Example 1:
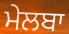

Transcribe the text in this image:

ਮੇਲਬਾ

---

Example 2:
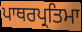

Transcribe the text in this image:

ਪਾਥਰਪ੍ਰਤਿਮਾ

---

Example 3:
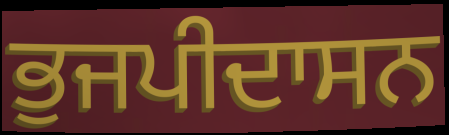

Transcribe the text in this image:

ਭੁਜਪੀਦਾਸਨ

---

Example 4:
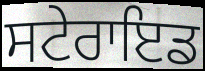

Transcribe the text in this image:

ਸਟੇਰਾਇਡ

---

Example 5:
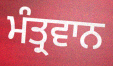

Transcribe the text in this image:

ਮੰਤ੍ਰਵਾਨ